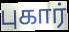
புகார்